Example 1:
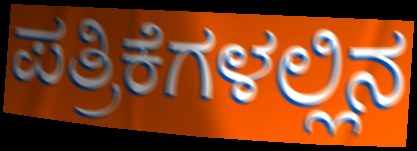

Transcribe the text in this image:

ಪತ್ರಿಕೆಗಳಲ್ಲಿನ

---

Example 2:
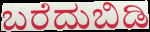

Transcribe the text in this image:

ಬರೆದುಬಿಡಿ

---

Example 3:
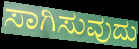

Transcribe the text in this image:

ಸಾಗಿಸುವುದು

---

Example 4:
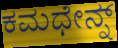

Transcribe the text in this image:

ಕಮಧೇನ್ನ್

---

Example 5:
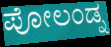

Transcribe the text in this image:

ಪೋಲಂಡ್ನ